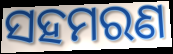
ସହମରଣ